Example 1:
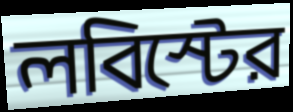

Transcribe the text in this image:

লবিস্টের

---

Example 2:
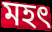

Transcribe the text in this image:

মহত্‍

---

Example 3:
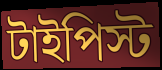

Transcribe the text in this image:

টাইপিস্ট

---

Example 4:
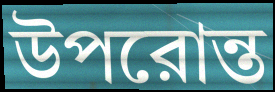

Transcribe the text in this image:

উপরোন্ত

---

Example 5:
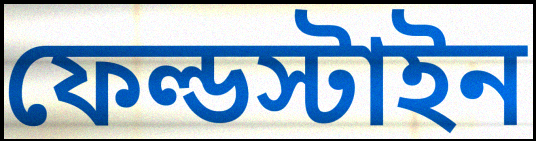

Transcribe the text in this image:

ফেল্ডস্টাইন